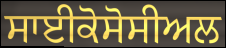
ਸਾਈਕੋਸੋਸੀਅਲ